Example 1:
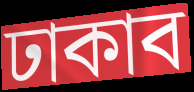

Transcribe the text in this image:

ঢাকাব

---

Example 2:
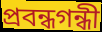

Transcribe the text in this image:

প্রবন্ধগন্ধী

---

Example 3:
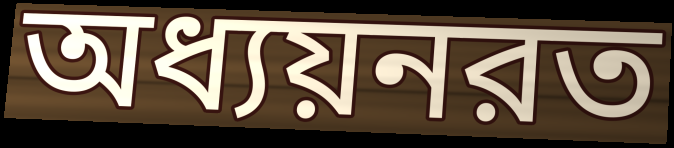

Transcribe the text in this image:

অধ্যয়নরত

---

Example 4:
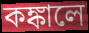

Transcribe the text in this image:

কঙ্কালে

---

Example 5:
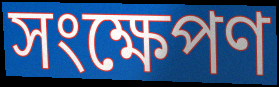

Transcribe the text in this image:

সংক্ষেপণ